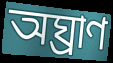
অঘ্রাণ